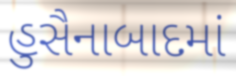
હુસૈનાબાદમાં